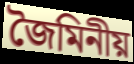
জৈমিনীয়